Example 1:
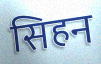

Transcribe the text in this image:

सिहन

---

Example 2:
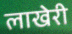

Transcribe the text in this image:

लाखेरी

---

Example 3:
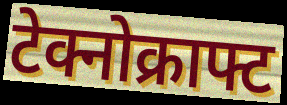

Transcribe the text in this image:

टेक्नोक्राफ्ट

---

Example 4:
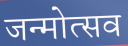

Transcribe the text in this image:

जन्मोत्सव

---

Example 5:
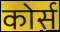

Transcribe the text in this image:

कोर्स